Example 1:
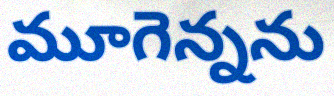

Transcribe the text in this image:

మూగెన్నను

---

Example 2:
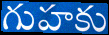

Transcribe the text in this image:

గుహకు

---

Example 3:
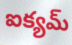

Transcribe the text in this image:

ఐక్యమ్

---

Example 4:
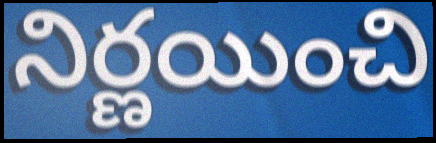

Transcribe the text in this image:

నిర్ణయించి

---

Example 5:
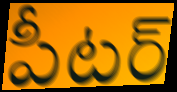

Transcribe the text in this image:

పీటర్